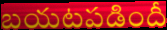
బయటపడిందీ